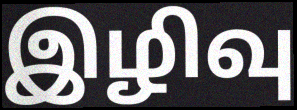
இழிவு